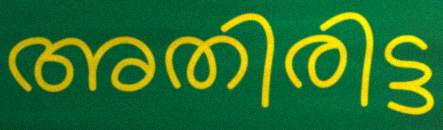
അതിരിട്ട